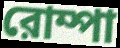
রোম্পা